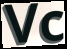
Vc